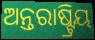
ଅନ୍ତରାଷ୍ଟ୍ରିୟ